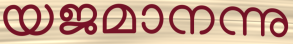
യജമാനന്നു